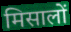
मिसालों